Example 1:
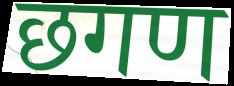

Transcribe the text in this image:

छगण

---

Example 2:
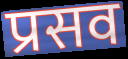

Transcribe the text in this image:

प्रसव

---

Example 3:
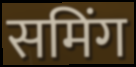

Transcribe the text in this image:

समिंग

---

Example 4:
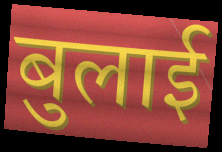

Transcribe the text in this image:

बुलाई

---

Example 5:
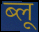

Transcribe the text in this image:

ब्लू